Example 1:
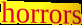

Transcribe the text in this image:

horrors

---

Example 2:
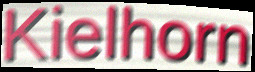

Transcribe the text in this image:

Kielhorn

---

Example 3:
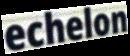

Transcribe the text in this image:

echelon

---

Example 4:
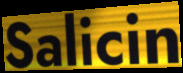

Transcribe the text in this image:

Salicin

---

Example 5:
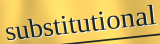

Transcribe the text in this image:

substitutional